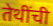
तेथींची